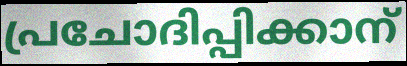
പ്രചോദിപ്പിക്കാന്